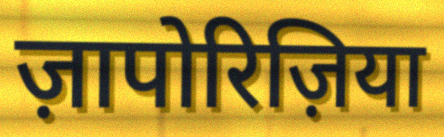
ज़ापोरिज़िया